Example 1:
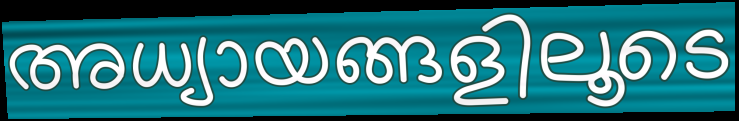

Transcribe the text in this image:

അധ്യായങ്ങളിലൂടെ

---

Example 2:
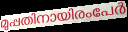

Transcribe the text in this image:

മുപ്പതിനായിരംപേർ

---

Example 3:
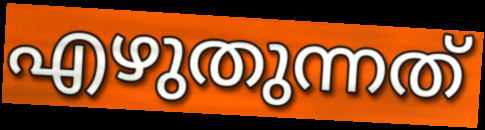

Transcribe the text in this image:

എഴുതുന്നത്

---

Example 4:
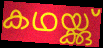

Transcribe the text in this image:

കഥയ്ക്കു്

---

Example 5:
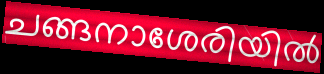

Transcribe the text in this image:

ചങ്ങനാശേരിയിൽ